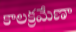
కాలక్రమేణా